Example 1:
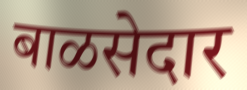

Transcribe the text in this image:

बाळसेदार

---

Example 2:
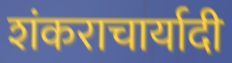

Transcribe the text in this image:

शंकराचार्यादी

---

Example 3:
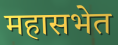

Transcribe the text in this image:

महासभेत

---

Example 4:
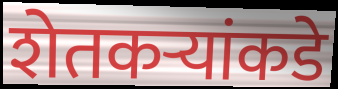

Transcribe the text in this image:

शेतकर्‍यांकडे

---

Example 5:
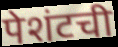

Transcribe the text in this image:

पेशंटची